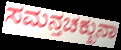
ಸಮನ್ತಚಕ್ಖುನಾ